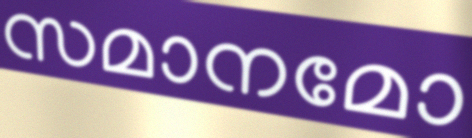
സമാനമോ